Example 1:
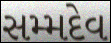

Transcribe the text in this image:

સમ્મદેવ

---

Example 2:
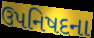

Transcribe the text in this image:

ઉપનિષદના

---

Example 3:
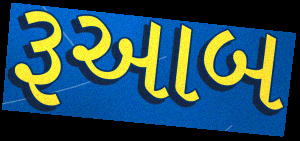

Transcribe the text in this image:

રૂઆબ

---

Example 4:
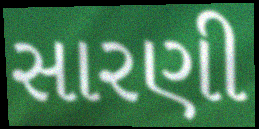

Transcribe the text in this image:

સારણી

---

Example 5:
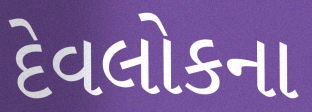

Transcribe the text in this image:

દેવલોકના